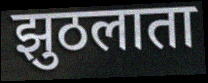
झुठलाता